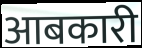
आबकारी